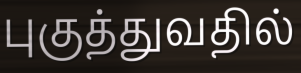
புகுத்துவதில்